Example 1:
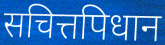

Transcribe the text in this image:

सचित्तपिधान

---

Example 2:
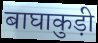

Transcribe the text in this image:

बाघाकुड़ी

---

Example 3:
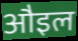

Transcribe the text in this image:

औइल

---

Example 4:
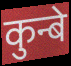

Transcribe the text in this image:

कुन्बे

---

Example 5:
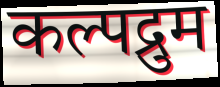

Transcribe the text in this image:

कल्पद्रुम